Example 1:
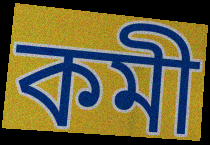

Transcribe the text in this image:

কমী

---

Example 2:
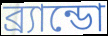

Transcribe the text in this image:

ব্র্যান্ডো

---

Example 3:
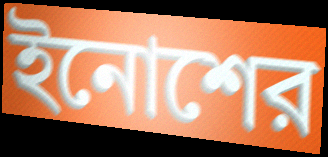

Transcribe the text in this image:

ইনোশের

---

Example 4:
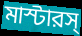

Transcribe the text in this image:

মাস্টারস্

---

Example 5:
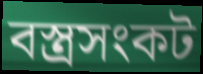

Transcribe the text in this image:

বস্ত্রসংকট